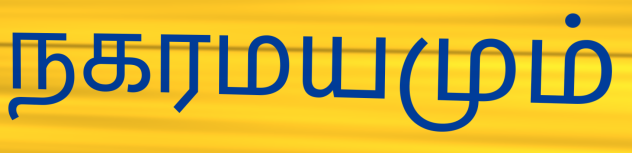
நகரமயமும்